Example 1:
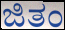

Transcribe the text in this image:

ಜಿತಂ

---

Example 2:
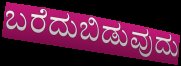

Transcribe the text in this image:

ಬರೆದುಬಿಡುವುದು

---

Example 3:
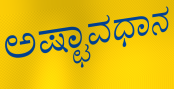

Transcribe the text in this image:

ಅಷ್ಟಾವಧಾನ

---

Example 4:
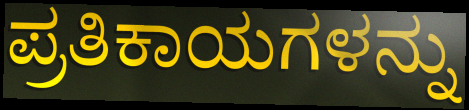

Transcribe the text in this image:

ಪ್ರತಿಕಾಯಗಳನ್ನು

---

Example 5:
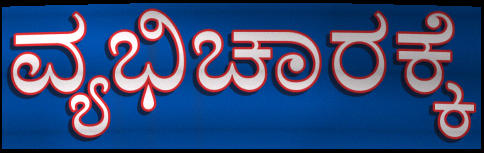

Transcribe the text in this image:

ವ್ಯಭಿಚಾರಕ್ಕೆ